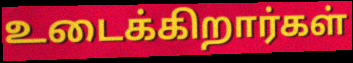
உடைக்கிறார்கள்